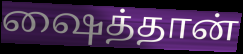
ஷைத்தான்